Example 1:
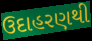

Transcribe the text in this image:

ઉદાહરણથી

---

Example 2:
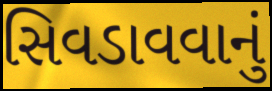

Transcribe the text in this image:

સિવડાવવાનું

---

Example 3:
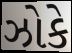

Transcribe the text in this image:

ઝોકે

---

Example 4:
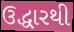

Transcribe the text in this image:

ઉદ્ધારથી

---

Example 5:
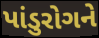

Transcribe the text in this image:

પાંડુરોગને